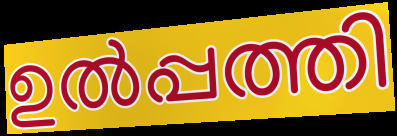
ഉൽപ്പത്തി